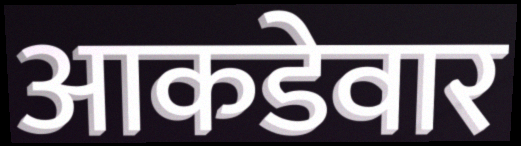
आकडेवार